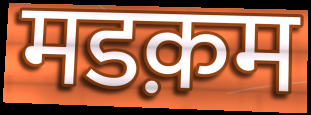
मडक़म